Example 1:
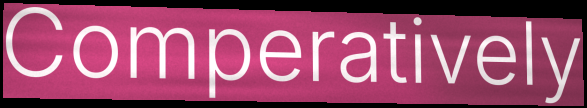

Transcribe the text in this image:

Comperatively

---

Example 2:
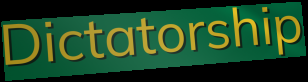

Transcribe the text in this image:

Dictatorship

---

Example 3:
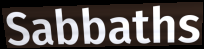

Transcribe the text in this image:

Sabbaths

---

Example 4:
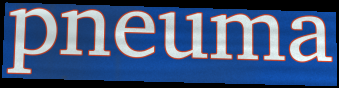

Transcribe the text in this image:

pneuma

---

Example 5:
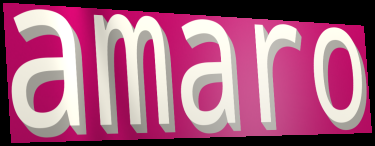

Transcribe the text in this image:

amaro